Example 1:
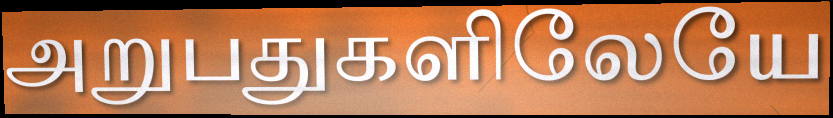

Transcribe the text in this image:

அறுபதுகளிலேயே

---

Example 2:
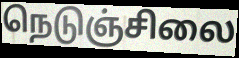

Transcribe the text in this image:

நெடுஞ்சிலை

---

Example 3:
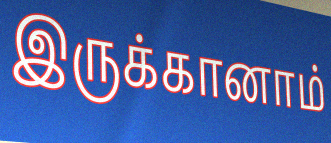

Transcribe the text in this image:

இருக்கானாம்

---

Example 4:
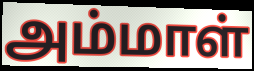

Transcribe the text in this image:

அம்மாள்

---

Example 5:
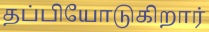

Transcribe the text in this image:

தப்பியோடுகிறார்